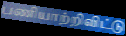
பணியாற்றிவிட்டு